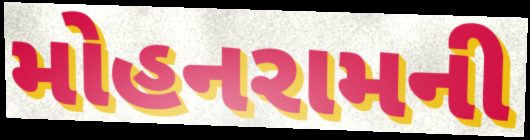
મોહનરામની